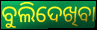
ବୁଲିଦେଖିବା